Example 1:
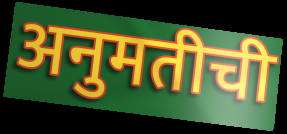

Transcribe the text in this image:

अनुमतीची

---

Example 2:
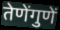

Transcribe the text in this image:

तेणेंगुणें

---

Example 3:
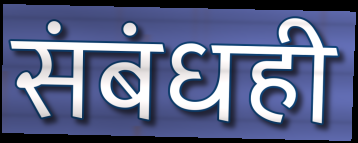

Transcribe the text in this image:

संबंधही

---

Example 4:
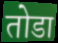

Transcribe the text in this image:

तोडा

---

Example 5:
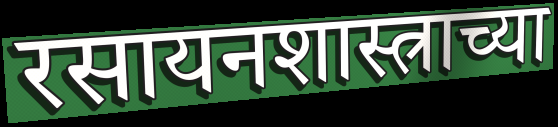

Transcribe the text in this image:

रसायनशास्त्राच्या